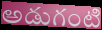
అడుగంటి